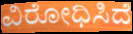
ವಿರೋಧಿಸಿದೆ